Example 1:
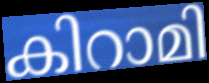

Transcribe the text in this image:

കിറാമി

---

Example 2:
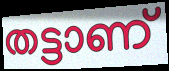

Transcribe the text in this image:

തട്ടാണ്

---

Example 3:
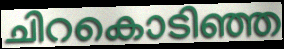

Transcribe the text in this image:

ചിറകൊടിഞ്ഞ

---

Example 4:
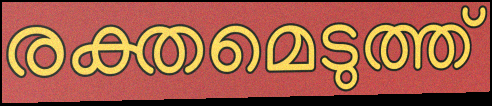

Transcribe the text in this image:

രക്തമെടുത്ത്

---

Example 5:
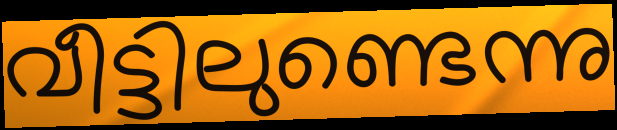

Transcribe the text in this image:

വീട്ടിലുണ്ടെന്നു